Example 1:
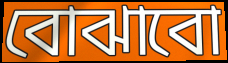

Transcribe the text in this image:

বোঝাবো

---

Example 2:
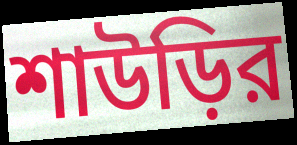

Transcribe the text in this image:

শাউড়ির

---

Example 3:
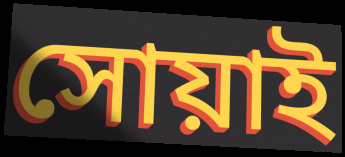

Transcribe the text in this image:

সোয়াই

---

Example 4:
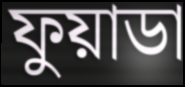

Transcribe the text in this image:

ফুয়াডা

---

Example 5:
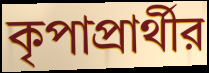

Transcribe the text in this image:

কৃপাপ্রার্থীর